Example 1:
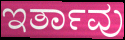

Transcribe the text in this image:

ಇರ್ತಾವು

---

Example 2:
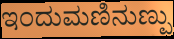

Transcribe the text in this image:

ಇಂದುಮಣಿನುಣ್ಪು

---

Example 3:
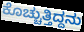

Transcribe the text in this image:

ಕೊಚ್ಚುತ್ತಿದ್ದನು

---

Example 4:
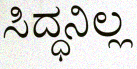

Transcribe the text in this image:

ಸಿದ್ಧನಿಲ್ಲ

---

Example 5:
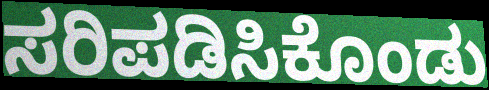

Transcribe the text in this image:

ಸರಿಪಡಿಸಿಕೊಂಡು